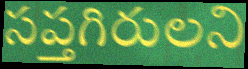
సప్తగిరులని